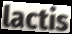
lactis